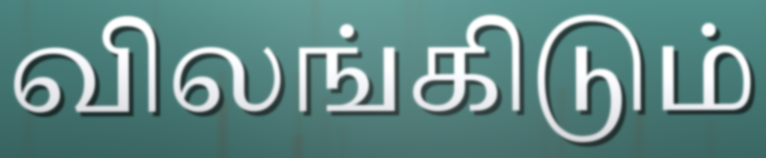
விலங்கிடும்